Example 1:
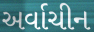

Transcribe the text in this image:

અર્વાચીન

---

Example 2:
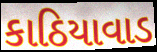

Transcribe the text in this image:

કાઠિયાવાડ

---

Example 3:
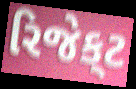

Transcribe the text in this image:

રિજેક્‌ટ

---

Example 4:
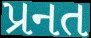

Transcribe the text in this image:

પ્રનત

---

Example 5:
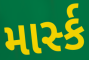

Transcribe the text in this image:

માર્સ્ક